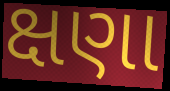
ક્ષણા